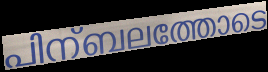
പിന്ബലത്തോടെ